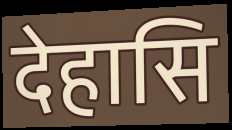
देहासि